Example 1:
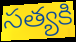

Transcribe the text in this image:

సత్యకి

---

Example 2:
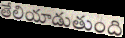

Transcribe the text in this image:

తేలియాడుతుంది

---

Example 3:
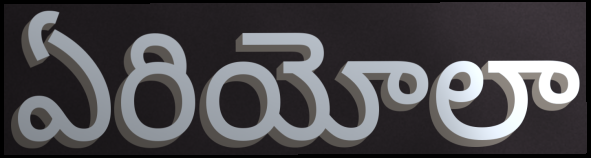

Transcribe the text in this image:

ఏరియోలా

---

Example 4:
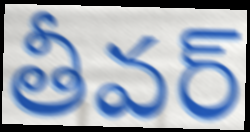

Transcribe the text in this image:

తీవర్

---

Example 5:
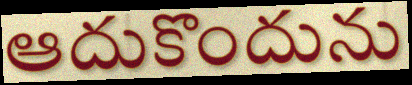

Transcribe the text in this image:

ఆదుకొందును